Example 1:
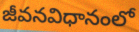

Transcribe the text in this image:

జీవనవిధానంలో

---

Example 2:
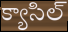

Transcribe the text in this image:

క్యాసిల్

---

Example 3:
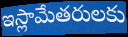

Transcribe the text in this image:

ఇస్లామేతరులకు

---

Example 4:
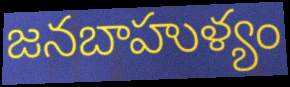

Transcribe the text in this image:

జనబాహుళ్యం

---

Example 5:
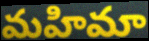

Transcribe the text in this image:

మహిమా